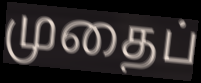
முதைப்